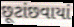
છૂટાંછવાયાં